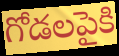
గోడలపైకి